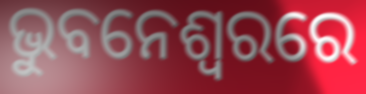
ଭୁବନେଶ୍ଵରରେ